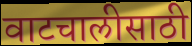
वाटचालीसाठी